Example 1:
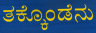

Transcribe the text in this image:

ತಕ್ಕೊಂಡೆನು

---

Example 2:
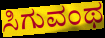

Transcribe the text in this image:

ಸಿಗುವಂಥ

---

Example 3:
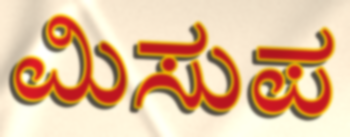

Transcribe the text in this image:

ಮಿಸುಪ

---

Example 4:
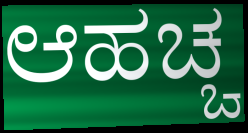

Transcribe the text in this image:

ಆಹಚ್ಚ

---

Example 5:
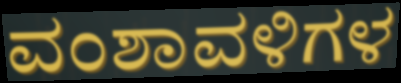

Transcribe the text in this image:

ವಂಶಾವಳಿಗಳ